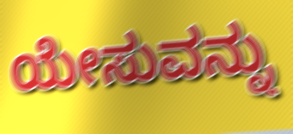
ಯೇಸುವನ್ನು